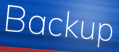
Backup